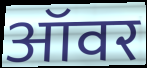
ऑवर